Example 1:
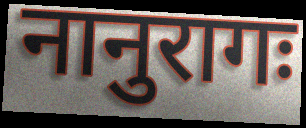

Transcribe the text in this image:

नानुरागः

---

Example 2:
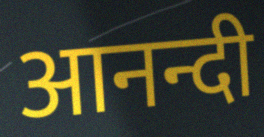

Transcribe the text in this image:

आनन्दी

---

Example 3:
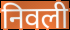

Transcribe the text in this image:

निवली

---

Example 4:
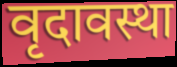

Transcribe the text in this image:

वृदावस्था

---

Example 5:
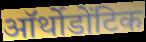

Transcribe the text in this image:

ऑर्थोडोंटिक